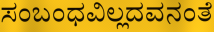
ಸಂಬಂಧವಿಲ್ಲದವನಂತೆ